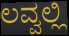
ಲವ್ವಲ್ಲಿ